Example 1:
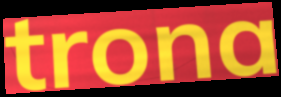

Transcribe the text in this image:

trona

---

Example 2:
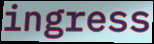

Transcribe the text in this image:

ingress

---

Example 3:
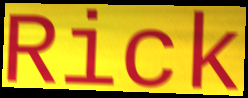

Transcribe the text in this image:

Rick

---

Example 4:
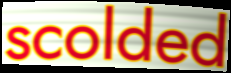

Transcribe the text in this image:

scolded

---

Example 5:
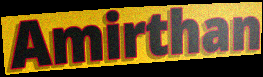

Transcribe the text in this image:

Amirthan